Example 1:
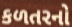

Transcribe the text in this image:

કળતરનો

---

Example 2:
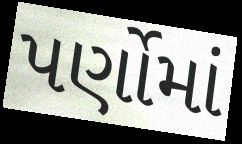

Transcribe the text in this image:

પર્ણોમાં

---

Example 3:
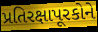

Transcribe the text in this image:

પ્રતિરક્ષાપૂરકોને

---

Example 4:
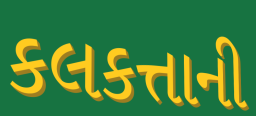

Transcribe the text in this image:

કલકત્તાની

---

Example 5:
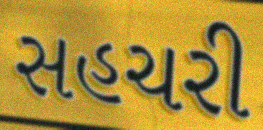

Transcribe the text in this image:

સહચરી